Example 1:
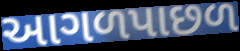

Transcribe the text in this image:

આગળપાછળ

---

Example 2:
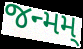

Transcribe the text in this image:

જન્મમ્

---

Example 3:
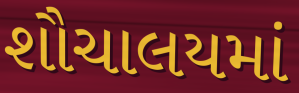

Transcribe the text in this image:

શૌચાલયમાં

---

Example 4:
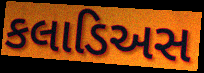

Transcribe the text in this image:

કલાડિઅસ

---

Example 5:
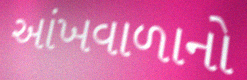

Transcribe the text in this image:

આંખવાળાનો